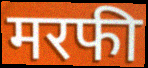
मरफी